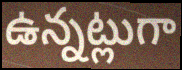
ఉన్నట్లుగా